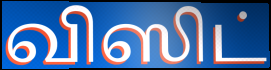
விஸிட்